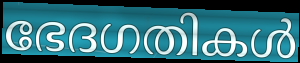
ഭേദഗതികൾ